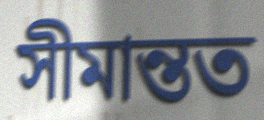
সীমান্তত